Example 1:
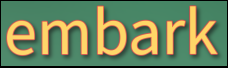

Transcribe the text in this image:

embark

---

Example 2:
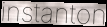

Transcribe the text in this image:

instanton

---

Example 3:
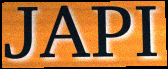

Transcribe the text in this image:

JAPI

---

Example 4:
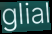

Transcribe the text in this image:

glial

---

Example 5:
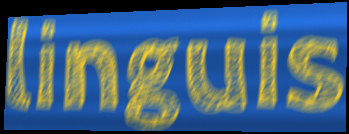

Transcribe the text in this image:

linguis